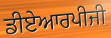
ਡੀਏਆਰਪੀਜੀ